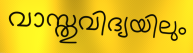
വാസ്തുവിദ്യയിലും